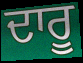
ਦਾਰੂ